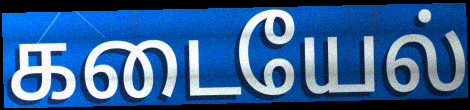
கடையேல்